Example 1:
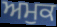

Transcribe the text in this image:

ਅਮੁਕ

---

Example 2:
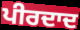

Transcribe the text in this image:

ਪੀਰਦਾਦ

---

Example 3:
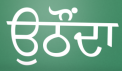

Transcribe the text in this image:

ਉਠੌਂਦਾ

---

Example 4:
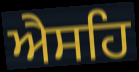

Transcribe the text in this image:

ਐਸਹਿ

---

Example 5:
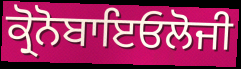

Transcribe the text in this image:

ਕ੍ਰੋਨੋਬਾਇਓਲੋਜੀ